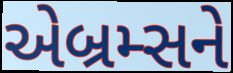
એબ્રમ્સને